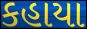
કહાયા